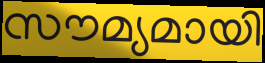
സൗമ്യമായി